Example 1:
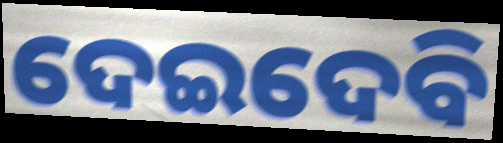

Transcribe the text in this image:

ଦେଇଦେବି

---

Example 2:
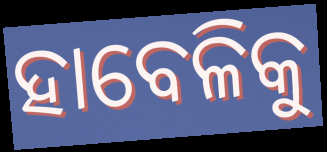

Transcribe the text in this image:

ହାବେଳିକୁ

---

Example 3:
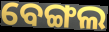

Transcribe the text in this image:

ବେଙ୍ଗଲ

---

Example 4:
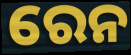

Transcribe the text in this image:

ରେନ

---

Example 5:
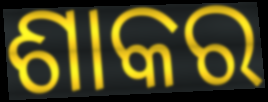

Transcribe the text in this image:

ଶାକର